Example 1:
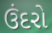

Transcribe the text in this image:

ઉંદરો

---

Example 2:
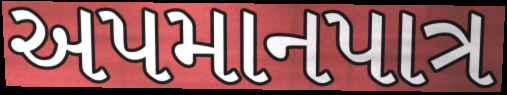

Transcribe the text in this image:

અપમાનપાત્ર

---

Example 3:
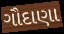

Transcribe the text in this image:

ગૌદાણા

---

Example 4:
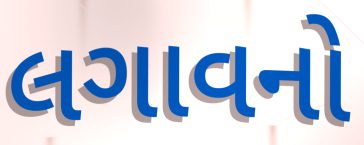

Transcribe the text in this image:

લગાવનો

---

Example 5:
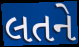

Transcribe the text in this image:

લતને